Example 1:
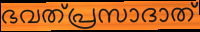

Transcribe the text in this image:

ഭവത്പ്രസാദാത്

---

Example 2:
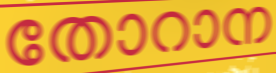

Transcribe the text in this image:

തോറാന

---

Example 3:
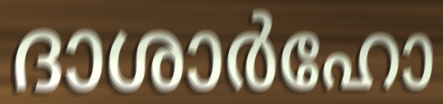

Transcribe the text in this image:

ദാശാർഹോ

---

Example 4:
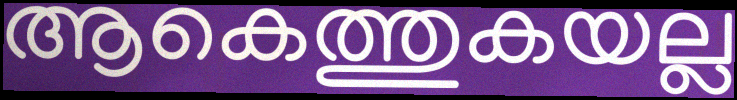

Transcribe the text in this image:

ആകെത്തുകയല്ല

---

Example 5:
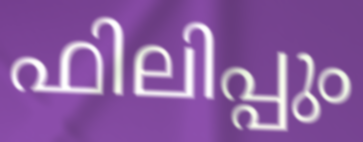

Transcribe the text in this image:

ഫിലിപ്പും